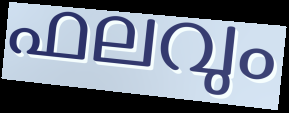
ഫലവും